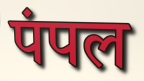
पंपल